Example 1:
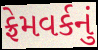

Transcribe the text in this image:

ફ્રેમવર્કનું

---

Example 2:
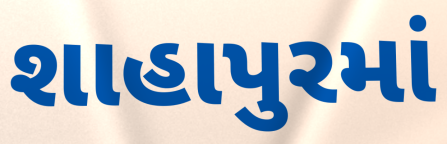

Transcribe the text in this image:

શાહાપુરમાં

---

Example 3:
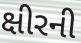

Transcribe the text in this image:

ક્ષીરની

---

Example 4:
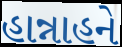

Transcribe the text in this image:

હાન્નાહને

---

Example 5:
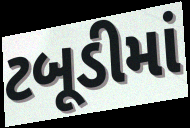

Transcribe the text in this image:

ટબૂડીમાં